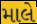
માલે